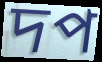
দপ